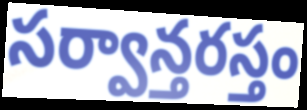
సర్వాన్తరస్తం